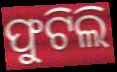
ଫୁଟିଲି